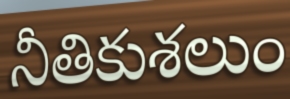
నీతికుశలుం